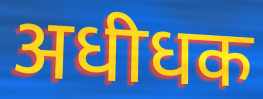
अधीधक